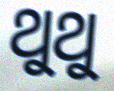
ଥୁଥୁ